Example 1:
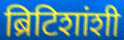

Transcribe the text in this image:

ब्रिटिशांशी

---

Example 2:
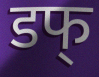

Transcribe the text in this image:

डफ्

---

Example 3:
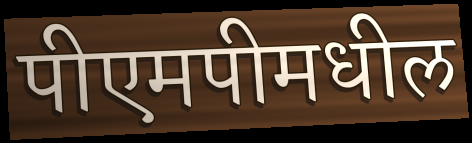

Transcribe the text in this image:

पीएमपीमधील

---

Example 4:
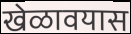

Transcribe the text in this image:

खेळावयास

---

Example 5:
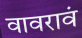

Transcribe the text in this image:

वावरावं